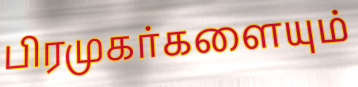
பிரமுகர்களையும்